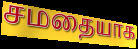
சமதையாக